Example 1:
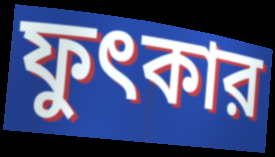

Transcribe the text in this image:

ফুৎকার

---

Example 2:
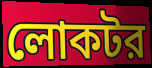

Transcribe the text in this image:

লোকটর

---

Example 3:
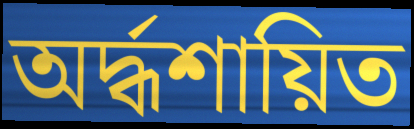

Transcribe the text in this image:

অর্দ্ধশায়িত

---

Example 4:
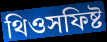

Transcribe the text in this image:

থিওসফিষ্ট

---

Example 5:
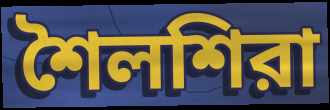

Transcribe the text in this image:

শৈলশিরা